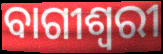
ବାଗୀଶ୍ୱରୀ